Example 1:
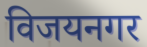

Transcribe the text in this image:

विजयनगर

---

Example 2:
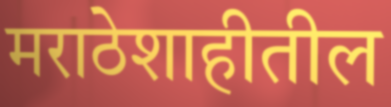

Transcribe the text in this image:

मराठेशाहीतील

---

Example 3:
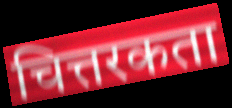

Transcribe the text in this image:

चित्तरकता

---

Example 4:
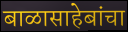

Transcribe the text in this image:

बाळासाहेबांचा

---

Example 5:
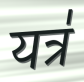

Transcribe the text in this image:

यत्र॑